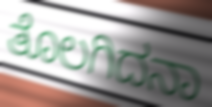
ತೊಲಗಿದನಾ